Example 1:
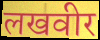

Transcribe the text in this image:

लखवीर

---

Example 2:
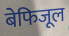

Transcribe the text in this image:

बेफिजूल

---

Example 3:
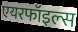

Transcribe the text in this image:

एयरफॉइल्स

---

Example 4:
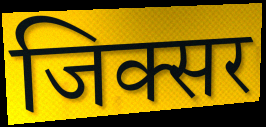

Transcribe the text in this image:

जिक्सर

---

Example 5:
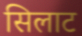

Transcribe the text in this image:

सिलाट